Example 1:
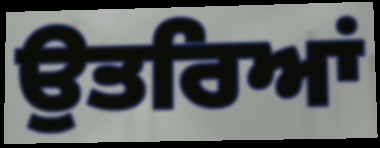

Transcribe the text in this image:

ਉਤਰਿਆਂ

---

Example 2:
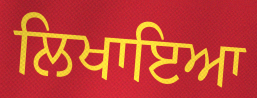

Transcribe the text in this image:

ਲਿਖਾਇਆ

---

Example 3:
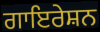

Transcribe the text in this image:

ਗਾਇਰੇਸ਼ਨ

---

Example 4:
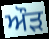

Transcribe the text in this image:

ਔਡ਼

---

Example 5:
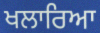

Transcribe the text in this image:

ਖਲਾਰਿਆ